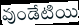
వుండేటియి